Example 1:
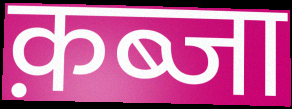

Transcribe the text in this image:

क़ब्ज़ा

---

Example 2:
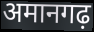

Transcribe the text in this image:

अमानगढ़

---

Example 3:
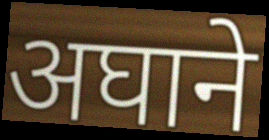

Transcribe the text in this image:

अघाने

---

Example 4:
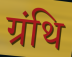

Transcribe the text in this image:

ग्रंथि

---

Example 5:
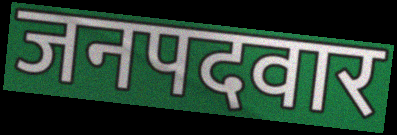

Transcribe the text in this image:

जनपदवार